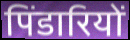
पिंडारियों